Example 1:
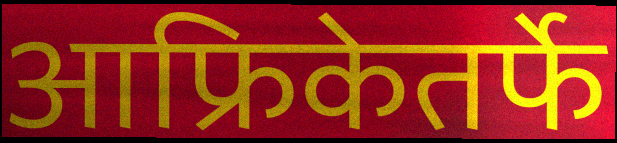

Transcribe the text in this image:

आफ्रिकेतर्फे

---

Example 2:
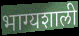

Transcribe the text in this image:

भाग्यशाली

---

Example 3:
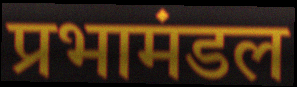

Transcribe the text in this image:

प्रभामंडल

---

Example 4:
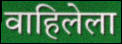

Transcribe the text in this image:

वाहिलेला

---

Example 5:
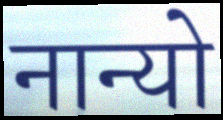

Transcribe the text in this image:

नान्यो